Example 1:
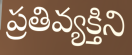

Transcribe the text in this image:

ప్రతివ్యక్తిని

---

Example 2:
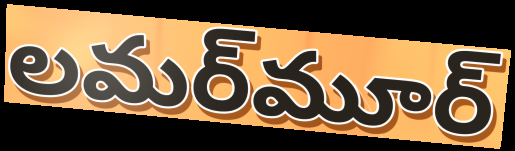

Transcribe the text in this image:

లమర్‌మూర్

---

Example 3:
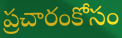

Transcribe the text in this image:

ప్రచారంకోసం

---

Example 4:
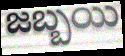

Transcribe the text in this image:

జబ్బయి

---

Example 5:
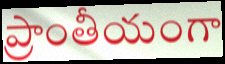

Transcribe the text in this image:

ప్రాంతీయంగా